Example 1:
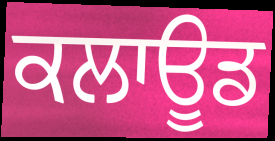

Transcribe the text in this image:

ਕਲਾਊਡ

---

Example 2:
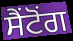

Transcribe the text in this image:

ਸੈਂਟੋਂਗ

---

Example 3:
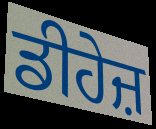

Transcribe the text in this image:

ਡੀਹੇਜ਼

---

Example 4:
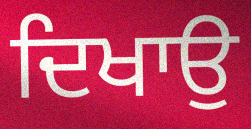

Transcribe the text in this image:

ਦਿਖਾਉ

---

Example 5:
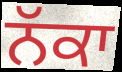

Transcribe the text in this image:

ਨੱਕਾ